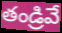
తండ్రివే